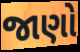
જાણો